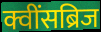
क्वींसब्रिज